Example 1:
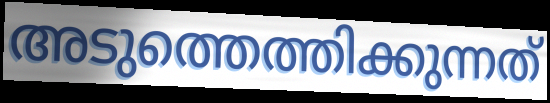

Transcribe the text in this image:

അടുത്തെത്തിക്കുന്നത്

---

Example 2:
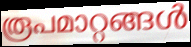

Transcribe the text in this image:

രൂപമാറ്റങ്ങൾ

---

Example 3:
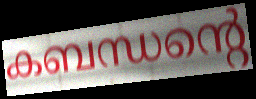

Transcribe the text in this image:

കബന്ധന്റെ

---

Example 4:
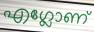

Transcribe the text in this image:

എഗ്ലോണ്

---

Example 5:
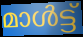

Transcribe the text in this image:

മാൾട്ട്